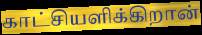
காட்சியளிக்கிறான்